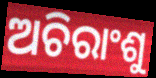
ଅଚିରାଂଶୁ